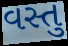
વસ્તુ